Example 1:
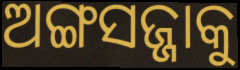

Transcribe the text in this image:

ଅଙ୍ଗସଜ୍ଜାକୁ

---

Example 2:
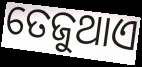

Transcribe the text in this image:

ତେଜୁଥାଏ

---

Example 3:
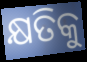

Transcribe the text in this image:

କ୍ଷତିକୁ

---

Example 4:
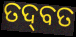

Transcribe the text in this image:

ତଦ୍‍ବତ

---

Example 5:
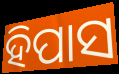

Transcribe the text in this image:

ହିପାସ